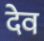
देव